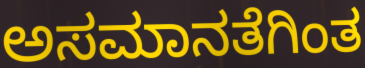
ಅಸಮಾನತೆಗಿಂತ